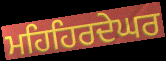
ਮਹਿਹਿਰਦੇਘਰ